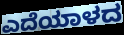
ಎದೆಯಾಳದ